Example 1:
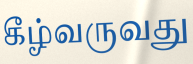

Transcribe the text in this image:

கீழ்வருவது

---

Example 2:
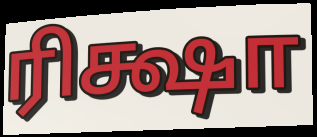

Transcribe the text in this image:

ரிக்ஷா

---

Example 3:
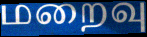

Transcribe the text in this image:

மறைவு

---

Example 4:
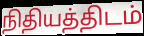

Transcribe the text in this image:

நிதியத்திடம்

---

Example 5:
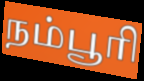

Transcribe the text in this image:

நம்பூரி